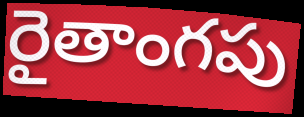
రైతాంగపు